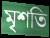
মৃশতি